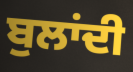
ਬੁਲਾਂਦੀ